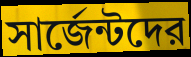
সার্জেন্টদের